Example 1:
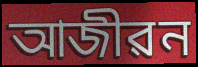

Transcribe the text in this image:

আজীৱন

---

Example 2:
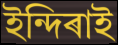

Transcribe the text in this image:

ইন্দিৰাই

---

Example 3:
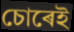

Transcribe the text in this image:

চোৰেই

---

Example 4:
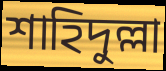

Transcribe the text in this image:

শাহিদুল্লা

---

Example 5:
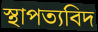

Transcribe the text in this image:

স্থাপত্যবিদ